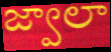
జ్వాలా